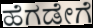
ಹೆಗಡೇಗೆ